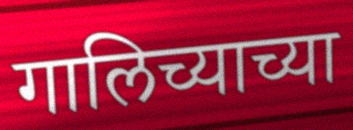
गालिच्याच्या